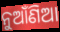
ନୁଆଁଣିଆ